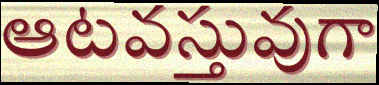
ఆటవస్తువుగా